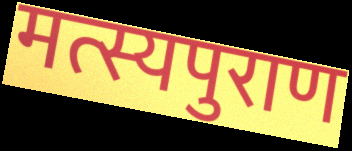
मत्स्यपुराण